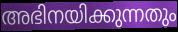
അഭിനയിക്കുന്നതും